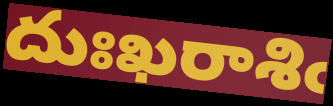
దుఃఖరాశిఁ